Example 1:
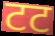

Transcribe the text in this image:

टट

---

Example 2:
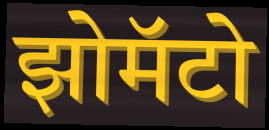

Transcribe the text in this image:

झोमॅटो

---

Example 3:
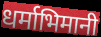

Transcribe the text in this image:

धर्माभिमानी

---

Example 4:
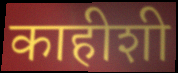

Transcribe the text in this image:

काहीशी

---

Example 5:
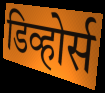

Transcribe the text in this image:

डिव्होर्स